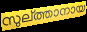
സുല്ത്താനായ